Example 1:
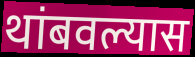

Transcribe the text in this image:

थांबवल्यास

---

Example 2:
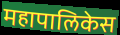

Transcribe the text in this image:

महापालिकेस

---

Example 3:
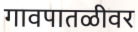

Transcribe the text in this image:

गावपातळीवर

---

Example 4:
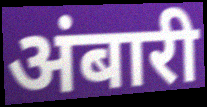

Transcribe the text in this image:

अंबारी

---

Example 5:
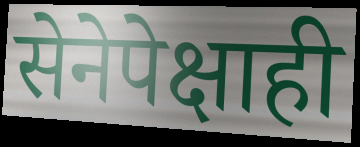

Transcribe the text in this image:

सेनेपेक्षाही